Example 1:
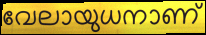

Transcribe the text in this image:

വേലായുധനാണ്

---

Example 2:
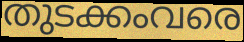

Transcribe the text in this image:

തുടക്കംവരെ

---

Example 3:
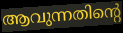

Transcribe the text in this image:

ആവുന്നതിന്റെ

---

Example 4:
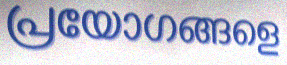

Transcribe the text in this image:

പ്രയോഗങ്ങളെ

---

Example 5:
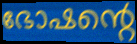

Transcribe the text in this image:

ഭോഷന്റെ